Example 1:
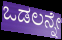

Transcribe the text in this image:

ಒಡಲನ್ನೇ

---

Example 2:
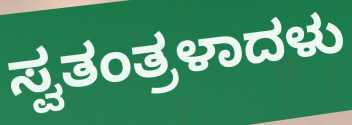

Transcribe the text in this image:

ಸ್ವತಂತ್ರಳಾದಳು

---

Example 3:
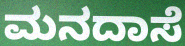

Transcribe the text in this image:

ಮನದಾಸೆ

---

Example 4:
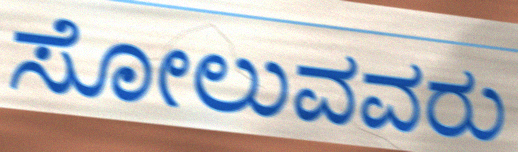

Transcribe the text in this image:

ಸೋಲುವವರು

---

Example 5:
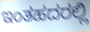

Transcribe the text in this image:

ಇಂತಹದರಲ್ಲಿ